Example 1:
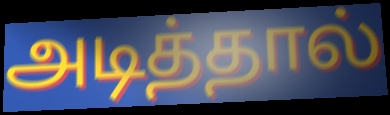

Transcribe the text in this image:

அடித்தால்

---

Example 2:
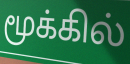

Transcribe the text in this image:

மூக்கில்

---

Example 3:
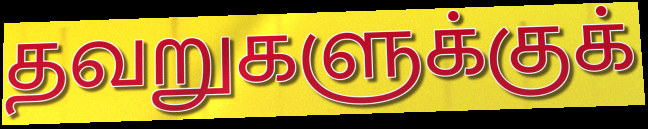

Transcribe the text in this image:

தவறுகளுக்குக்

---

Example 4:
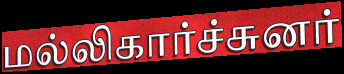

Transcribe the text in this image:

மல்லிகார்ச்சுனர்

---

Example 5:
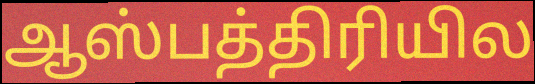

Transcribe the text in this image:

ஆஸ்பத்திரியில